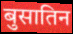
बुसातिन